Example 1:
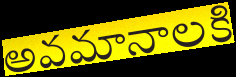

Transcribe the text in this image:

అవమానాలకి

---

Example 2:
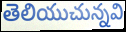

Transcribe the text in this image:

తెలియుచున్నవి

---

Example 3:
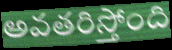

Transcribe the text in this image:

అవతరిస్తోంది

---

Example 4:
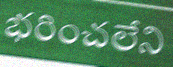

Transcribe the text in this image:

భరించలేని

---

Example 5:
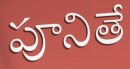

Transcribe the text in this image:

పూనితే